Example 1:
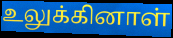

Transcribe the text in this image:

உலுக்கினாள்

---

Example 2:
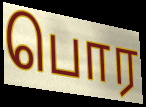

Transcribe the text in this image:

பொர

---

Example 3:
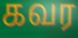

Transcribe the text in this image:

கவர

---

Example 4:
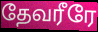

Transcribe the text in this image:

தேவரீரே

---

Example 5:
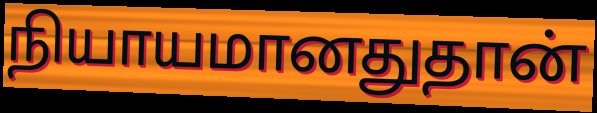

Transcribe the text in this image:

நியாயமானதுதான்